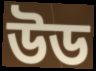
উড